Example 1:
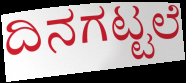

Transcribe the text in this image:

ದಿನಗಟ್ಟಲೆ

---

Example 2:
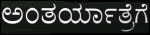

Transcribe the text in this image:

ಅಂತರ್ಯಾತ್ರೆಗೆ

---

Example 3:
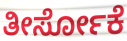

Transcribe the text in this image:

ತೀರ್ಸೋಕೆ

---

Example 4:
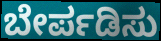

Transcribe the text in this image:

ಬೇರ್ಪಡಿಸು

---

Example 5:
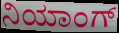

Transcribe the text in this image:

ನಿಯಾಂಗ್